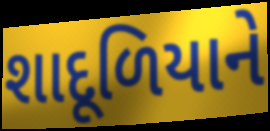
શાદૂળિયાને